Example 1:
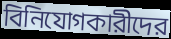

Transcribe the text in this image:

বিনিযোগকারীদের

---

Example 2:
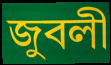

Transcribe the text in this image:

জুবলী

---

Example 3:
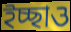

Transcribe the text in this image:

ইচ্ছাও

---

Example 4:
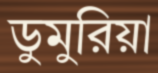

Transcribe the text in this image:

ডুমুরিয়া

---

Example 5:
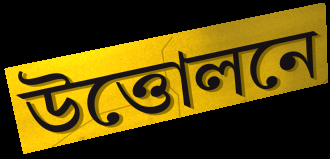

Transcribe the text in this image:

উত্তোলনে